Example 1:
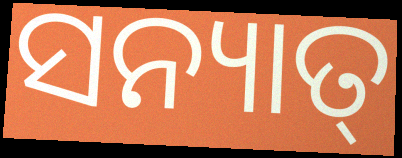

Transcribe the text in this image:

ସନ୍ୟାତ୍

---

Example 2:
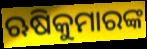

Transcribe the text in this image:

ଋଷିକୁମାରଙ୍କ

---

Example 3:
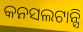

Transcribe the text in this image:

କନସଲଟାନ୍ସି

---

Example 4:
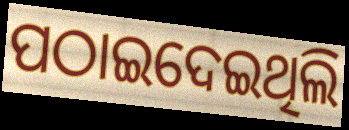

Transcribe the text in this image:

ପଠାଇଦେଇଥିଲି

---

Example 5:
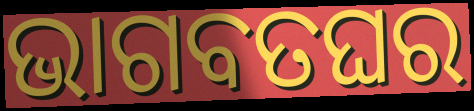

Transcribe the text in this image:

ଭାଗବତଘର